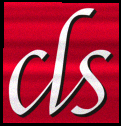
cls